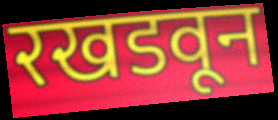
रखडवून